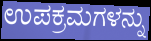
ಉಪಕ್ರಮಗಳನ್ನು